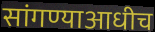
सांगण्याआधीच